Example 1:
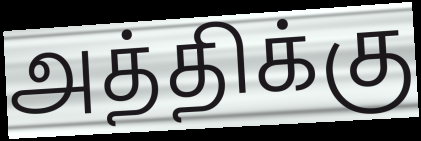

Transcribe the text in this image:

அத்திக்கு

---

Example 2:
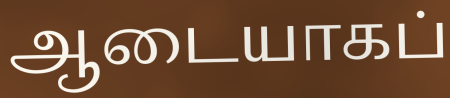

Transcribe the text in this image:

ஆடையாகப்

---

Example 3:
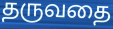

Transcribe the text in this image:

தருவதை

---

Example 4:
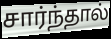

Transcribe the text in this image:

சார்ந்தால்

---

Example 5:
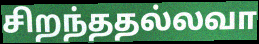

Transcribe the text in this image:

சிறந்ததல்லவா